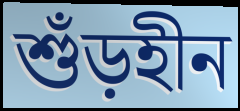
শুঁড়হীন